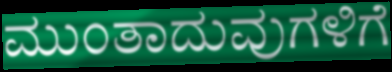
ಮುಂತಾದುವುಗಳಿಗೆ